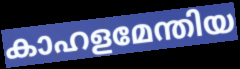
കാഹളമേന്തിയ